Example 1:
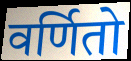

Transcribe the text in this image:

वर्णितो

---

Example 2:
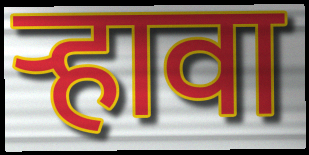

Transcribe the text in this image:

र्‍हावा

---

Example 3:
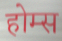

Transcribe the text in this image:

होम्स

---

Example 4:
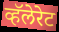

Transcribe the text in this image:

व्हॅलेरेट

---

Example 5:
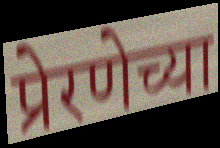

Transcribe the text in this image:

प्रेरणेच्या